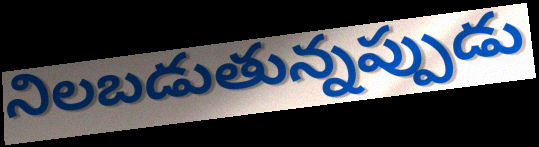
నిలబడుతున్నప్పుడు